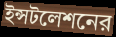
ইন্সটলেশনের